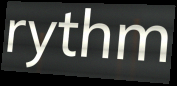
rythm